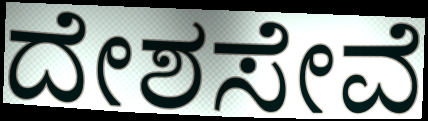
ದೇಶಸೇವೆ